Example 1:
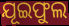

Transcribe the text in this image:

ଯୂଇଫୁଲ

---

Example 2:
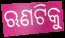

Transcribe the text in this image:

ଋଣଟିକୁ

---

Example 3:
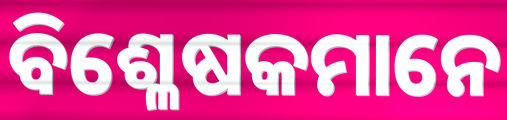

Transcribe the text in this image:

ବିଶ୍ଳେଷକମାନେ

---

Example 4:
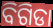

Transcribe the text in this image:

ବିଗିଡା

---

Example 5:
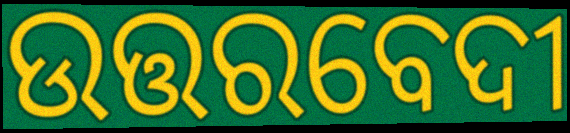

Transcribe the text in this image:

ଉତ୍ତରବେଦୀ